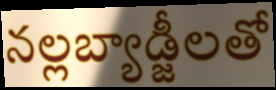
నల్లబ్యాడ్జీలతో